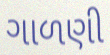
ગાળણી